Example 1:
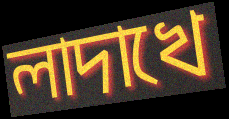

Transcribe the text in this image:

লাদাখে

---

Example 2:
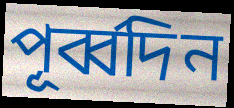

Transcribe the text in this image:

পূর্ব্বদিন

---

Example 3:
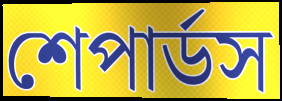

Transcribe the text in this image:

শেপার্ডস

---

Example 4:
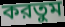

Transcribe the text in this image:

করতুম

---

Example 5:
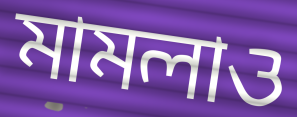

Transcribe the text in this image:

মামলাও